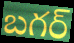
బగర్